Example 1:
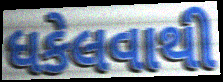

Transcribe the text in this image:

ધકેલવાથી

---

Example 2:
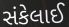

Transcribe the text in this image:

સંકેલાઈ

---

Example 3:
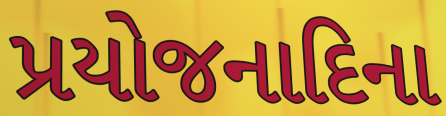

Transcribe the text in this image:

પ્રયોજનાદિના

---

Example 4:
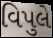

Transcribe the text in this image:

વિપુલે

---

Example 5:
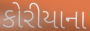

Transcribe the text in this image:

કોરીયાના